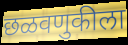
छळवणुकीला